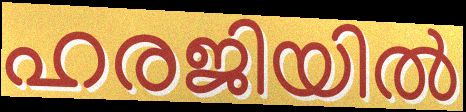
ഹരജിയിൽ